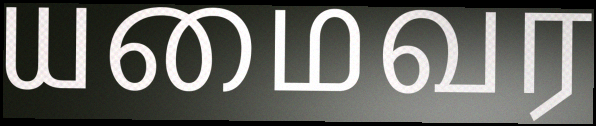
யமைவர